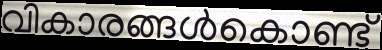
വികാരങ്ങൾകൊണ്ട്